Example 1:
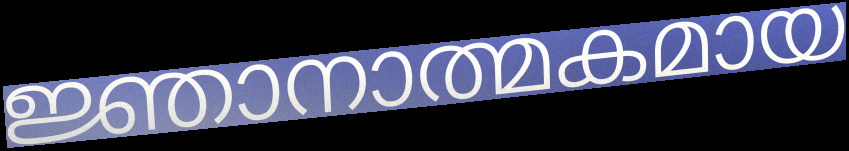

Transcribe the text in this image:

ജ്ഞാനാത്മകമായ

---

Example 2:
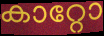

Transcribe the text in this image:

കാറ്റോ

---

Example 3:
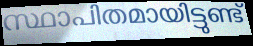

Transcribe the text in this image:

സ്ഥാപിതമായിട്ടുണ്ട്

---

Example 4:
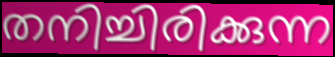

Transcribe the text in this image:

തനിച്ചിരിക്കുന്ന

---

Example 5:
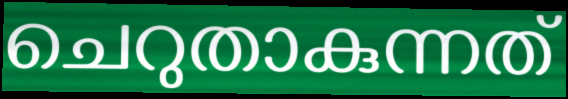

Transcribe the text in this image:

ചെറുതാകുന്നത്